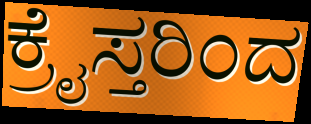
ಕ್ರೈಸ್ತರಿಂದ